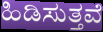
ಹಿಡಿಸುತ್ತವೆ